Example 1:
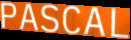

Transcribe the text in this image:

PASCAL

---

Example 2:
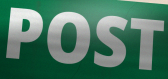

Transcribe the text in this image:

POST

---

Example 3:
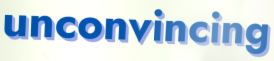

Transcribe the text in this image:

unconvincing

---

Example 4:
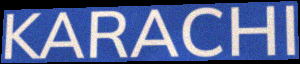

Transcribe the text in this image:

KARACHI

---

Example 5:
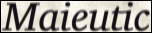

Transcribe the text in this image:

Maieutic